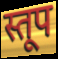
स्तूप